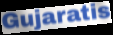
Gujaratis